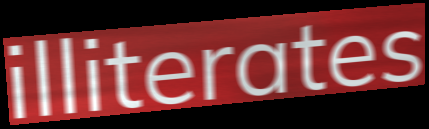
illiterates